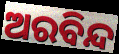
ଅରବିନ୍ଦ